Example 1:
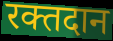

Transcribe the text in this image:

रक्तदान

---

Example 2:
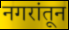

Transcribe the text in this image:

नगरांतून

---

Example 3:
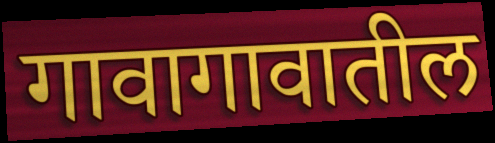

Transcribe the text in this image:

गावागावातील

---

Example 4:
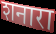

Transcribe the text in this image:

शनारा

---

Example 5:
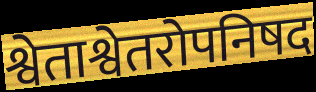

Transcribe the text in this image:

श्वेताश्वेतरोपनिषद